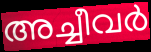
അച്ചീവർ